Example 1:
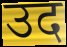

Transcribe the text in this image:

उद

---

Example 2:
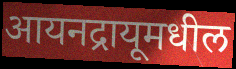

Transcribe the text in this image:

आयनद्रायूमधील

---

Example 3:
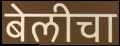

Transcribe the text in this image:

बेलीचा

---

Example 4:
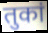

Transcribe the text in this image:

तुकां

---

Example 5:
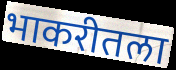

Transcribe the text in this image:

भाकरीतला